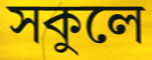
সকুলে